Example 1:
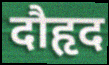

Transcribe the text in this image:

दौहृद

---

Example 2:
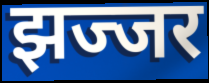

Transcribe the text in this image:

झज्जर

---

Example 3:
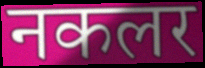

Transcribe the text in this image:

नकलर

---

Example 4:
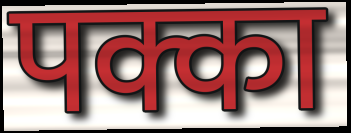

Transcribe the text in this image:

पक्का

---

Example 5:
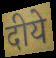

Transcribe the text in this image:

दीये